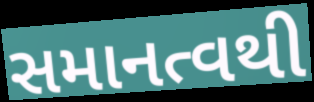
સમાનત્વથી